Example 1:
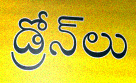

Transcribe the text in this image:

డ్రోన్‌లు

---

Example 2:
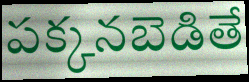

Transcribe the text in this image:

పక్కనబెడితే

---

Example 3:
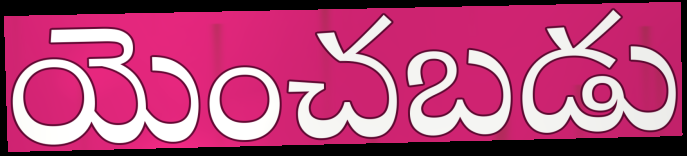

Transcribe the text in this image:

యెంచబడు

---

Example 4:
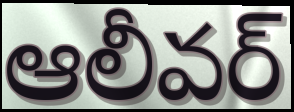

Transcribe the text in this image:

ఆలీవర్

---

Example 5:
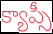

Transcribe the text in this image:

క్యాప్సీ